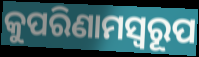
କୁପରିଣାମସ୍ୱରୂପ